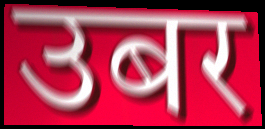
उबर